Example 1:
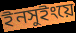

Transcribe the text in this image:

ইনসুইংয়ে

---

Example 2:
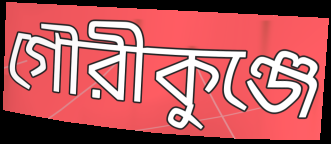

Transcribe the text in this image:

গৌরীকুঞ্জে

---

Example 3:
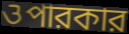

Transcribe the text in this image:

ওপারকার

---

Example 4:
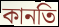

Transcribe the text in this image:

কানতি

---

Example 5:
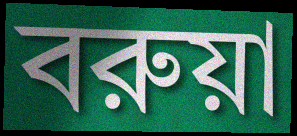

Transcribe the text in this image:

বরুয়া